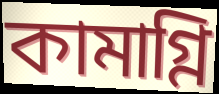
কামাগ্নি